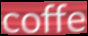
coffe